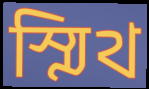
স্মিথ